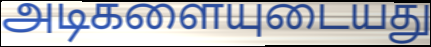
அடிகளையுடையது